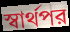
স্বার্থপর